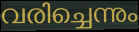
വരിച്ചെന്നും